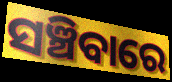
ସଞ୍ଚିବାରେ